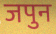
जपुन